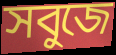
সবুজে